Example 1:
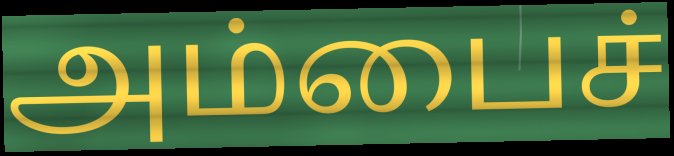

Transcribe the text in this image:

அம்பைச்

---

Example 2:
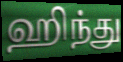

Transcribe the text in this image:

ஹிந்து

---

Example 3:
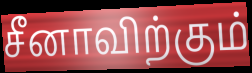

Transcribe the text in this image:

சீனாவிற்கும்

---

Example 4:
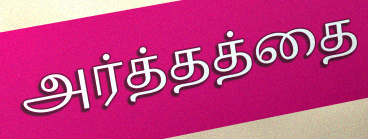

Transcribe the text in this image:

அர்த்தத்தை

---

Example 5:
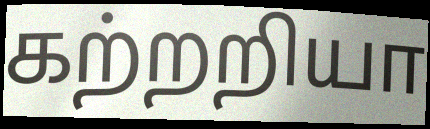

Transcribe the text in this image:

கற்றறியா